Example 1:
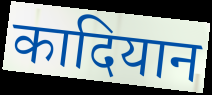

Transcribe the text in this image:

कादियान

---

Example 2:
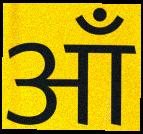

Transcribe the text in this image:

आँ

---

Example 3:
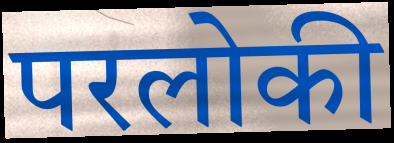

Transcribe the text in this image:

परलोकी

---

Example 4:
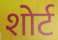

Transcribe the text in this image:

शोर्ट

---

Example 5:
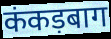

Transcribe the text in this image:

कंकड़बाग